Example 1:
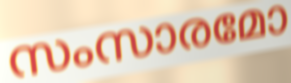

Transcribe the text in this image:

സംസാരമോ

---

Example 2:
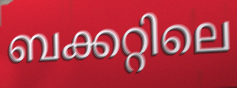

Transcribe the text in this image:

ബക്കറ്റിലെ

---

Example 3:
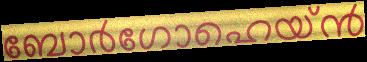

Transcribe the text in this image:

ബോർഗോഹെയ്ൻ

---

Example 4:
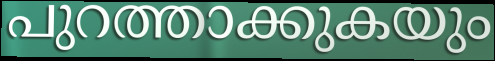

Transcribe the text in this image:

പുറത്താക്കുകയും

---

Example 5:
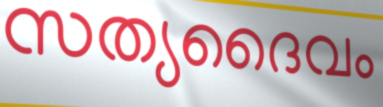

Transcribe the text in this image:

സത്യദൈവം